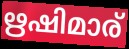
ഋഷിമാര്